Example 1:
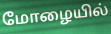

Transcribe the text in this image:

மோழையில்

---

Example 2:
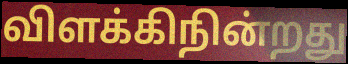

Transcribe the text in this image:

விளக்கிநின்றது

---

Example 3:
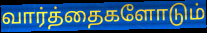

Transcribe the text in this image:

வார்த்தைகளோடும்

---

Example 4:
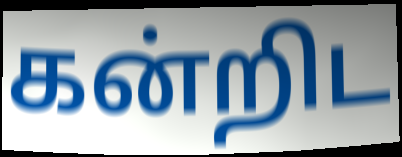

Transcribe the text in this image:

கன்றிட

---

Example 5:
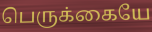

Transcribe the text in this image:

பெருக்கையே